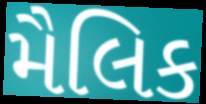
મૈલિક